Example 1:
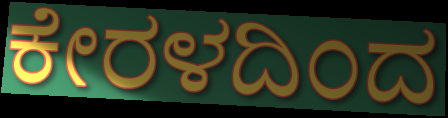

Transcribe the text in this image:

ಕೇರಳದಿಂದ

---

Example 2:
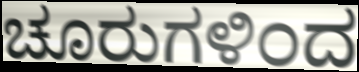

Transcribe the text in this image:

ಚೂರುಗಳಿಂದ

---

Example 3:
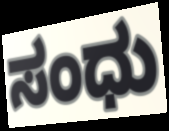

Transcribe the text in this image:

ಸಂಧು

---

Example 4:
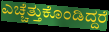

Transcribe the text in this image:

ಎಚ್ಚೆತ್ತುಕೊಂಡಿದ್ದರೆ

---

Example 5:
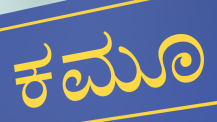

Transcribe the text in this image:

ಕಮೂ